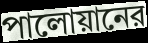
পালোয়ানের